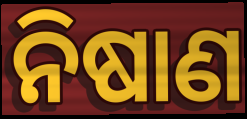
ନିଷାଣ